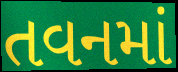
તવનમાં